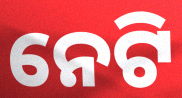
ନେଟି